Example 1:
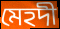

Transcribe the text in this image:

মেহদী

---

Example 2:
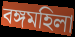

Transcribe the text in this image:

বঙ্গমহিলা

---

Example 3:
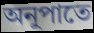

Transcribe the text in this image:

অনুপাতে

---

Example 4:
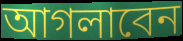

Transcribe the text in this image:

আগলাবেন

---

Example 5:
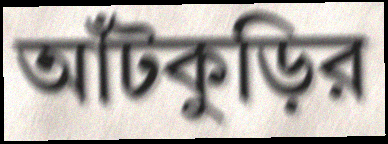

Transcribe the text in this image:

আঁটকুড়ির